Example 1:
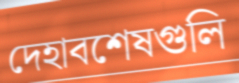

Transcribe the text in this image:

দেহাবশেষগুলি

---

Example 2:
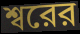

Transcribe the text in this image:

শ্বরের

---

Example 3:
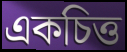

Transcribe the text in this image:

একচিত্ত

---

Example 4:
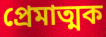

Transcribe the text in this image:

প্রেমাত্মক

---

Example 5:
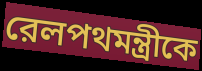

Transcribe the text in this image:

রেলপথমন্ত্রীকে